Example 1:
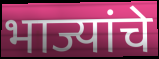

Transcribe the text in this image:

भाज्यांचे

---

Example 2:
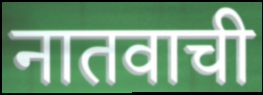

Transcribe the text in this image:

नातवाची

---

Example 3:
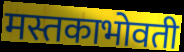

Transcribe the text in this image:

मस्तकाभोवती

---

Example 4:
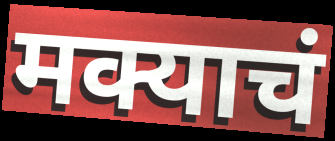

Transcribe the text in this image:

मक्याचं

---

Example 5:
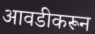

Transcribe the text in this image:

आवडीकरून